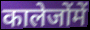
कालेजोंमें